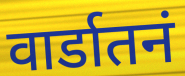
वार्डातनं